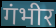
गंभीर